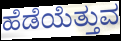
ಹೆಡೆಯೆತ್ತುವ